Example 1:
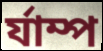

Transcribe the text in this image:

র্যাম্প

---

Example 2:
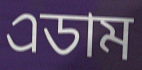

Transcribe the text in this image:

এডাম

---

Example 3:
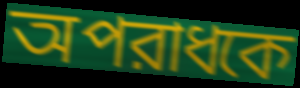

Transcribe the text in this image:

অপরাধকে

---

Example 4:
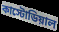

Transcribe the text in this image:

কাস্টোডিয়াল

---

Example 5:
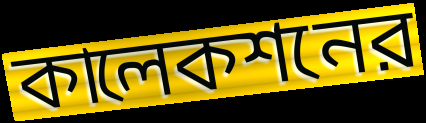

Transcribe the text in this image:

কালেকশনের